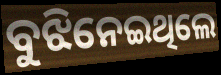
ବୁଝିନେଇଥିଲେ